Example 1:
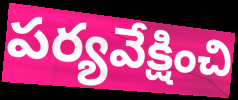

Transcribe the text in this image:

పర్యవేక్షించి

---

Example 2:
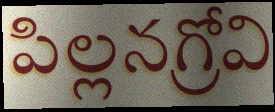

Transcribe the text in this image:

పిల్లనగ్రోవి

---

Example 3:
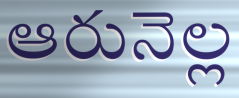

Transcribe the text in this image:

ఆరునెల్ల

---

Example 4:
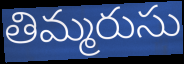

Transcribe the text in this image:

తిమ్మరుసు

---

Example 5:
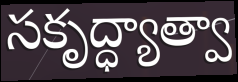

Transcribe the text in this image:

సకృద్ధ్యాత్వా